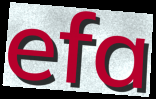
efa